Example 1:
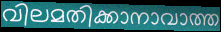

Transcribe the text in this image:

വിലമതിക്കാനാവാത്ത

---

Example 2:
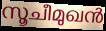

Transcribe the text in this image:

സൂചീമുഖൻ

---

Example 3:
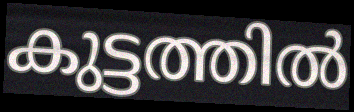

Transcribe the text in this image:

കുട്ടത്തിൽ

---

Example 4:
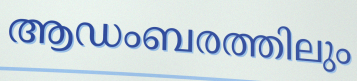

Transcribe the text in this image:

ആഡംബരത്തിലും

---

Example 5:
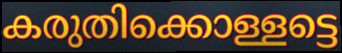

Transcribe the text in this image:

കരുതിക്കൊള്ളട്ടെ